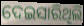
ଦେଇସାରିଥିଲି